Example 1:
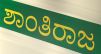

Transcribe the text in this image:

ಶಾಂತಿರಾಜ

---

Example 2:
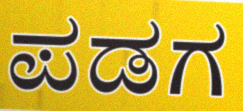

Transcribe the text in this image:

ಪಡಗ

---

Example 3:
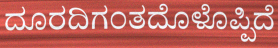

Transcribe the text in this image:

ದೂರದಿಗಂತದೊಳೊಪ್ಪಿದೆ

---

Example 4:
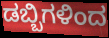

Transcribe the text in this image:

ಡಬ್ಬಿಗಳಿಂದ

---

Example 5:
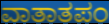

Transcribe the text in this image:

ವಾತಾತಪಂ